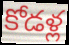
కోడళ్ల